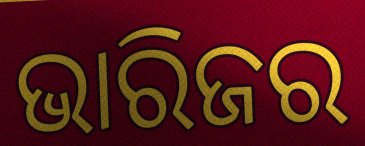
ଭାରିଜର